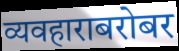
व्यवहाराबरोबर